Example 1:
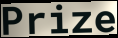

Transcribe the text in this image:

Prize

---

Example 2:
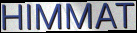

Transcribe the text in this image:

HIMMAT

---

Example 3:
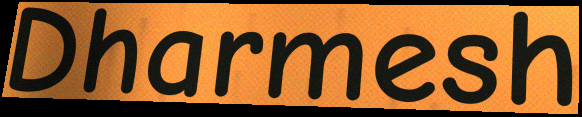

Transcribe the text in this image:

Dharmesh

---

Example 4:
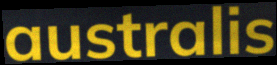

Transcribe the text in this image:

australis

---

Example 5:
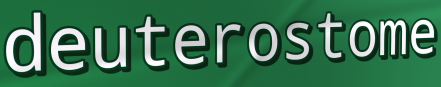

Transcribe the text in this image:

deuterostome